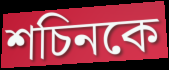
শচিনকে